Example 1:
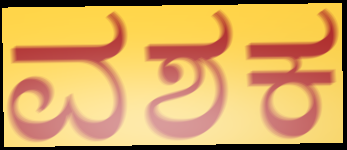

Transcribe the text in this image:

ವಶಕ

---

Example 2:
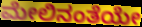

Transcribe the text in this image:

ಮೇಲಿನಂತೆಯೇ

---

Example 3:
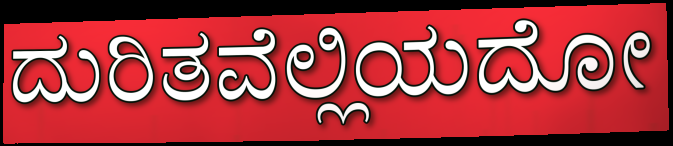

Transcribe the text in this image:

ದುರಿತವೆಲ್ಲಿಯದೋ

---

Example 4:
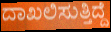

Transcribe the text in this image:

ದಾಖಲಿಸುತ್ತಿದ್ದೆ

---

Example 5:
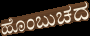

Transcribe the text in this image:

ಹೊಂಬುಚದ